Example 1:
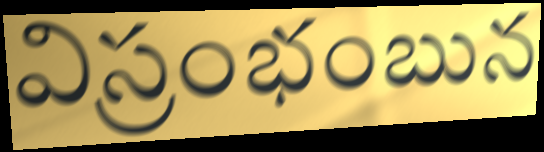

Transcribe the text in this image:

విస్రంభంబున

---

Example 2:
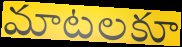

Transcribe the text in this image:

మాటలకూ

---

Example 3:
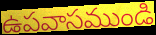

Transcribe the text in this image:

ఉపవాసముండి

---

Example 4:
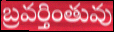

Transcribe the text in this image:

బ్రవర్తింతువు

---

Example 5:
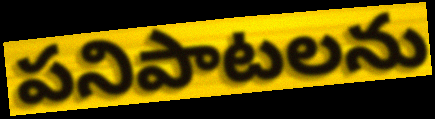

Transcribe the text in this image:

పనిపాటలను